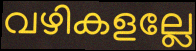
വഴികളല്ലേ